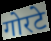
गोरटे